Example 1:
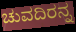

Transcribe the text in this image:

ಚುವದಿರನ್ನ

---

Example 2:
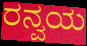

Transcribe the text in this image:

ರನ್ವಯ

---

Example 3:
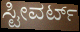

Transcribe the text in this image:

ಸ್ಟೀವರ್ಟ್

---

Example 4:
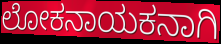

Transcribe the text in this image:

ಲೋಕನಾಯಕನಾಗಿ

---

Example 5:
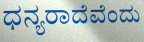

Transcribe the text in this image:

ಧನ್ಯರಾದೆವೆಂದು